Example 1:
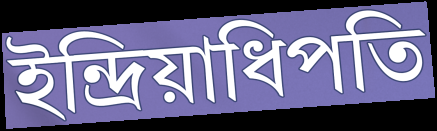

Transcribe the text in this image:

ইন্দ্রিয়াধিপতি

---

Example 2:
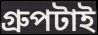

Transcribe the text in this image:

গ্রুপটাই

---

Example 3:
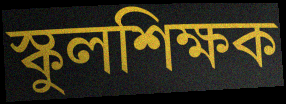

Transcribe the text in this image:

স্কুলশিক্ষক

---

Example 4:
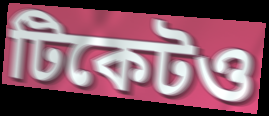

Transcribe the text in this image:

টিকেটও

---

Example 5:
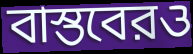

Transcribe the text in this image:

বাস্তবেরও